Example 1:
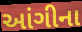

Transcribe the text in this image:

આંગીના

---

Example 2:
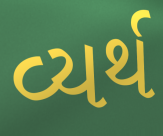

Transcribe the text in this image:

વ્યર્થ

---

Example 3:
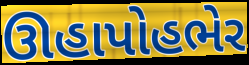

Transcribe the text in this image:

ઊહાપોહભેર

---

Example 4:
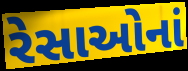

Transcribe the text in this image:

રેસાઓનાં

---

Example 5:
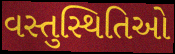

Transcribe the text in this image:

વસ્તુસ્થિતિઓ